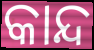
କାନ୍ଦ